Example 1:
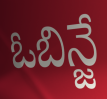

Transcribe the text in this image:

ఓబిన్జే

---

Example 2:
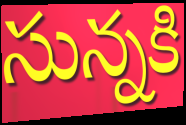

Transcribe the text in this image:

సున్నకి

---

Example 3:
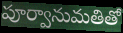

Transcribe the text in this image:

పూర్వానుమతితో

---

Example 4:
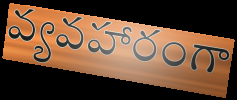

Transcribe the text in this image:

వ్యవహారంగా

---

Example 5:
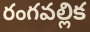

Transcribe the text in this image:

రంగవల్లిక